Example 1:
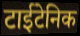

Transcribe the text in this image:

टाईटेनिक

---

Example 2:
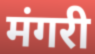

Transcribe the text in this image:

मंगरी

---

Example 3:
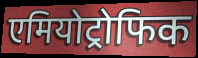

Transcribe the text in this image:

एमियोट्रोफिक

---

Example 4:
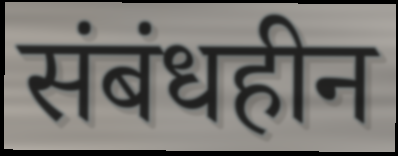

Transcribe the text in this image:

संबंधहीन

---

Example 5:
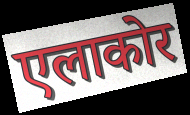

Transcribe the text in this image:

एलाकोर